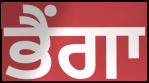
ਭੈਂਗਾ